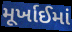
મૂર્ખાઈમાં